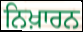
ਨਿਖ਼ਾਰਨ